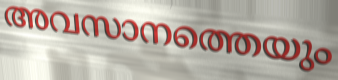
അവസാനത്തെയും